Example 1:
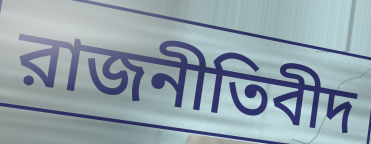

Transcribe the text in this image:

রাজনীতিবীদ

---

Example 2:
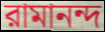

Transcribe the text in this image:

রামানন্দ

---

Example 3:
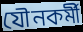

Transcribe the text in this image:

যৌনকর্মী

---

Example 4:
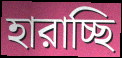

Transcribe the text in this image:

হারাচ্ছি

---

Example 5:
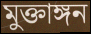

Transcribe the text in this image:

মুক্তাঙ্গন